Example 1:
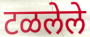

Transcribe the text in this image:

टळलेले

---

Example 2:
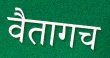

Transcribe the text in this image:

वैतागच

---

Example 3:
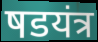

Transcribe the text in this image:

षडयंत्र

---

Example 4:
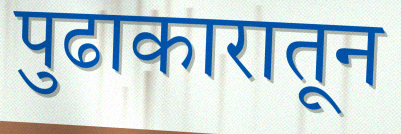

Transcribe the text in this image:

पुढाकारातून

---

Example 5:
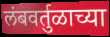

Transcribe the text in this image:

लंबवर्तुळाच्या